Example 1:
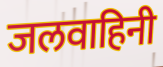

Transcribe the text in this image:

जलवाहिनी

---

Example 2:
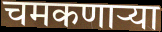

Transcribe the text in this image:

चमकणाऱ्या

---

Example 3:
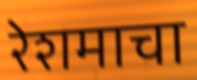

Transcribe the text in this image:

रेशमाचा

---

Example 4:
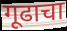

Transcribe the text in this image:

गूढाचा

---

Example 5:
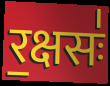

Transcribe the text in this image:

र॒क्षसः॑